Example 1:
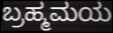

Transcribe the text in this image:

ಬ್ರಹ್ಮಮಯ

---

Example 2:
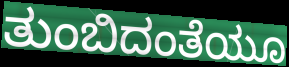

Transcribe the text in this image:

ತುಂಬಿದಂತೆಯೂ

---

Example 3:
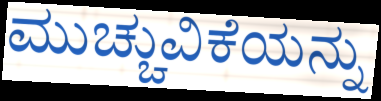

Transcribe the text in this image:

ಮುಚ್ಚುವಿಕೆಯನ್ನು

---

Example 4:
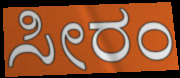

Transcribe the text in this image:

ಸೀರಂ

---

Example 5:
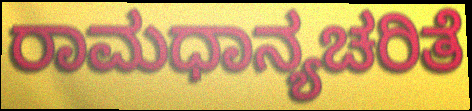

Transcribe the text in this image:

ರಾಮಧಾನ್ಯಚರಿತೆ